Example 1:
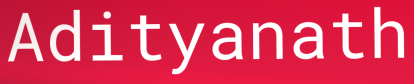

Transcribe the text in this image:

Adityanath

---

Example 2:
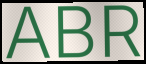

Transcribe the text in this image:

ABR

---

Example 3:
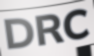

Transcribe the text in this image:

DRC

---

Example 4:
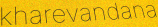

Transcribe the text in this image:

kharevandana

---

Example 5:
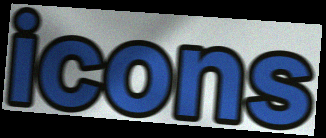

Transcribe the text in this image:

icons